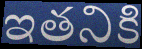
ఇతనికి